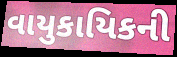
વાયુકાયિકની